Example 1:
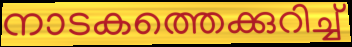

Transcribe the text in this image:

നാടകത്തെക്കുറിച്ച്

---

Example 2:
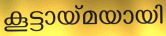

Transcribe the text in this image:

കൂട്ടായ്മയായി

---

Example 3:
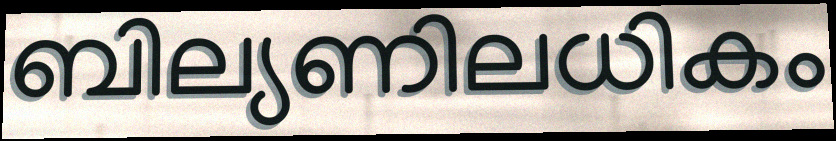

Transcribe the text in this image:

ബില്യണിലധികം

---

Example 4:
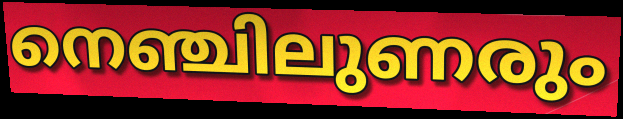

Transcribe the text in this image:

നെഞ്ചിലുണരും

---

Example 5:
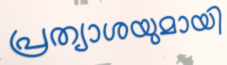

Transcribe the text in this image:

പ്രത്യാശയുമായി